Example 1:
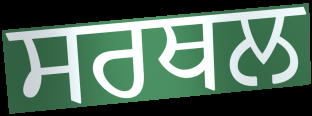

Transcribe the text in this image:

ਸਰਥਲ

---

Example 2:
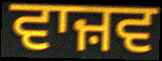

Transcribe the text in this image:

ਵਾਜ਼ਵ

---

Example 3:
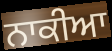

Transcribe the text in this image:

ਨਾਕੀਆ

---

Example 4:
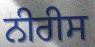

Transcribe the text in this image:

ਨੀਰੀਸ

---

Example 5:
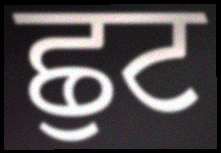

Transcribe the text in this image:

ਛੁਟ